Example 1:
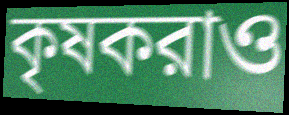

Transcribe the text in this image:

কৃষকরাও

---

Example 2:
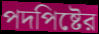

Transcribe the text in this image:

পদপিষ্টের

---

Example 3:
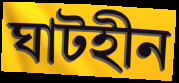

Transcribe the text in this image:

ঘাটহীন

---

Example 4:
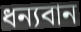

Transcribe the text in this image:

ধন্যবান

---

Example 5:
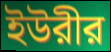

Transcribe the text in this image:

ইউরীর